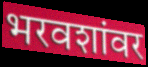
भरवशांवर